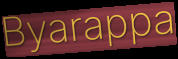
Byarappa